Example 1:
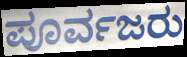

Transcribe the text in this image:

ಪೂರ್ವಜರು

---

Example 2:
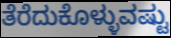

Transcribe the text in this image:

ತೆರೆದುಕೊಳ್ಳುವಷ್ಟು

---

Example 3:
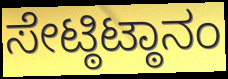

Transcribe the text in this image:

ಸೇಟ್ಠಿಟ್ಠಾನಂ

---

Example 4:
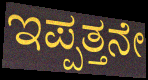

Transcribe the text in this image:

ಇಪ್ಪತ್ತನೇ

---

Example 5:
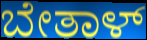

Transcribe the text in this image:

ಬೇತಾಳ್